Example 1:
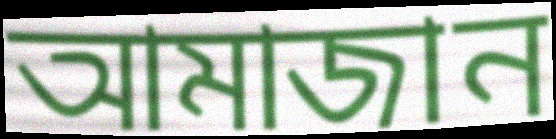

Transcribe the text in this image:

আমাজান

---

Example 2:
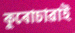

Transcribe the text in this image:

কুৰোচাৱাই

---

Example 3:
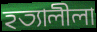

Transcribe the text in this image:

হত্যালীলা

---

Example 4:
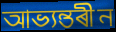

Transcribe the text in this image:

আভ্যন্তৰীন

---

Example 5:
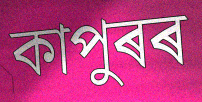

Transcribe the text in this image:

কাপুৰৰ